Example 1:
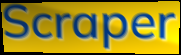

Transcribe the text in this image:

Scraper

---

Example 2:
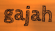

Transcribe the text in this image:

gajah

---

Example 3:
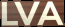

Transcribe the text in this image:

LVA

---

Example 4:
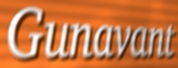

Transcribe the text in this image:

Gunavant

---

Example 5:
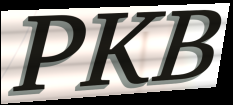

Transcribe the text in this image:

PKB